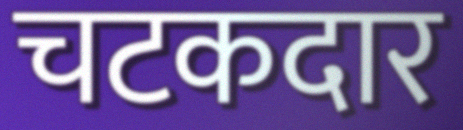
चटकदार